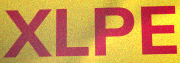
XLPE